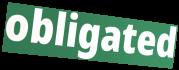
obligated